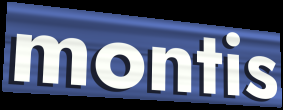
montis